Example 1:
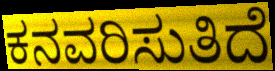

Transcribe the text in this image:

ಕನವರಿಸುತಿದೆ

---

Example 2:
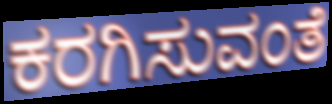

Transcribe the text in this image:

ಕರಗಿಸುವಂತೆ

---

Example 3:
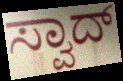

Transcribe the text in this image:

ಸ್ವಾದ್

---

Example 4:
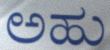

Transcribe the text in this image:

ಅಹು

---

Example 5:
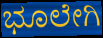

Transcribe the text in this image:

ಭೂಲೇಗಿ